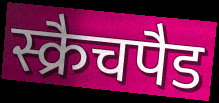
स्क्रैचपैड